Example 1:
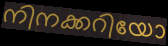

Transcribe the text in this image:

നിനക്കറിയോ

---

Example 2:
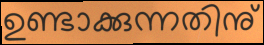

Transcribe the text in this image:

ഉണ്ടാക്കുന്നതിനു്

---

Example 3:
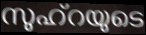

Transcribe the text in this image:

സുഹ്റയുടെ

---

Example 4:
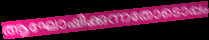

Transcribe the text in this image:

ആഘോഷിക്കുന്നതോടൊപ്പം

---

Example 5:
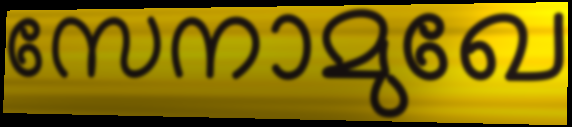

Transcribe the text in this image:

സേനാമുഖേ